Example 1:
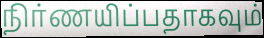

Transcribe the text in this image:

நிர்ணயிப்பதாகவும்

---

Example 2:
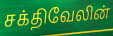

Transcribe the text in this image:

சக்திவேலின்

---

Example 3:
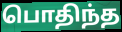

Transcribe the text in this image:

பொதிந்த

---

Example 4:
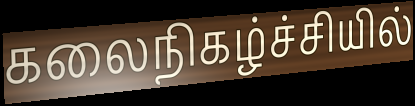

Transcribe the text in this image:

கலைநிகழ்ச்சியில்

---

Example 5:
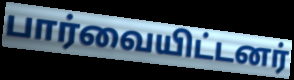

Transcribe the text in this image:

பார்வையிட்டனர்